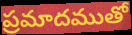
ప్రమాదముతో